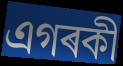
এগৰকী